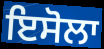
ਇਸੋਲਾ